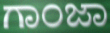
ಗಾಂಜಾ